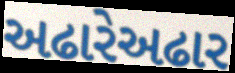
અઢારેઅઢાર